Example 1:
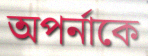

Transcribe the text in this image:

অপর্নাকে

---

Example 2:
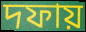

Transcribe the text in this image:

দফায়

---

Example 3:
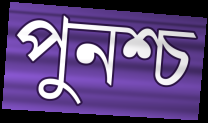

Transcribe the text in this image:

পুনশ্চ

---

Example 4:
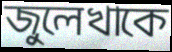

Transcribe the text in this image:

জুলেখাকে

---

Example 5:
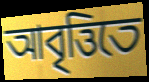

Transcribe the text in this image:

আবৃত্তিতে